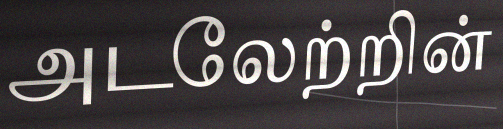
அடலேற்றின்